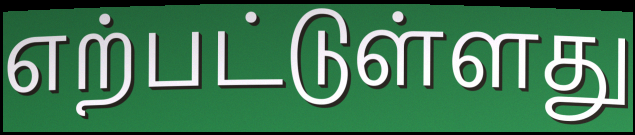
எற்பட்டுள்ளது